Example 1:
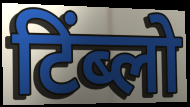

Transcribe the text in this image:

टिंब्लो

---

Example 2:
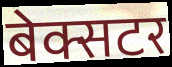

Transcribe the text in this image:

बेक्सटर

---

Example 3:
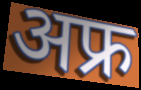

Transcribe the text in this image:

अफ्र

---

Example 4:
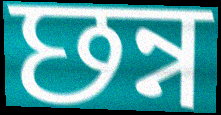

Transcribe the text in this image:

छन्न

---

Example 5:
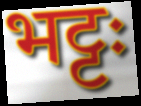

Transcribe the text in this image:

भट्टः